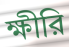
ক্ষীরি